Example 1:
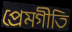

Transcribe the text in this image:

প্রেমগীতি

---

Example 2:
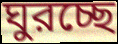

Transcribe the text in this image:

ঘুরচ্ছে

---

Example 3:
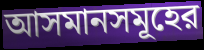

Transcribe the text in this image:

আসমানসমূহের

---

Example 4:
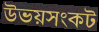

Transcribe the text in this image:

উভয়সংকট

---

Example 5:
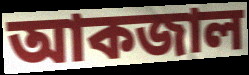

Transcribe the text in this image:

আকজাল